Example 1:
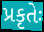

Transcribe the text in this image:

પ્રકૃતેઃ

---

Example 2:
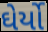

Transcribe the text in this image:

ઘેર્યો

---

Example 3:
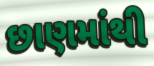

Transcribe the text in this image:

છાણમાંથી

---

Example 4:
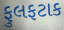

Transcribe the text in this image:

ફુલફટાક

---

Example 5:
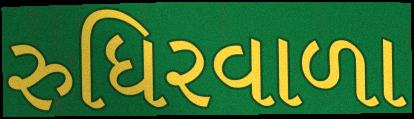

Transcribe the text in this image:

રુધિરવાળા